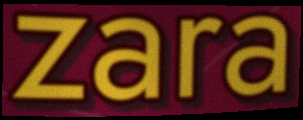
zara